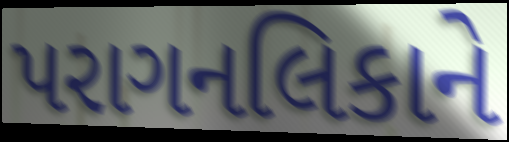
પરાગનલિકાને